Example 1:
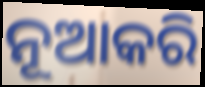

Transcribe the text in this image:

ନୂଆକରି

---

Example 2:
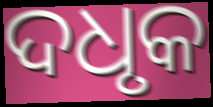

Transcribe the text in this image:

ଦଧୃକ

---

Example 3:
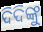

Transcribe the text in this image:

ଦିଦିଙ୍କୁ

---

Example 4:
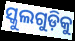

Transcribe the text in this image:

ସ୍କୁଲଗୁଡ଼ିକୁ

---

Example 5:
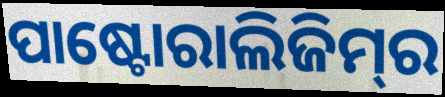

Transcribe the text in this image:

ପାଷ୍ଟୋରାଲିଜିମ୍‌ର